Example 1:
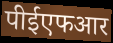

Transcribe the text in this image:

पीईएफआर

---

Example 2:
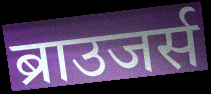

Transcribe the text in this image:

ब्राउजर्स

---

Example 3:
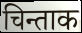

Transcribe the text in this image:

चिन्ताक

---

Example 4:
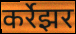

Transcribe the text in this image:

कर्रेझर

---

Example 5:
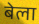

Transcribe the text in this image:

बेला